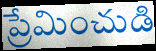
ప్రేమించుడి